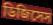
ডিজিসেস